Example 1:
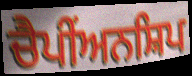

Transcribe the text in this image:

ਚੈਪੀਂਅਨਸ਼ਿਪ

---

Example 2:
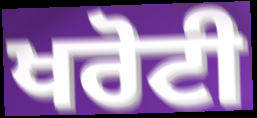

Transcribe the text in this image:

ਖਰੋਟੀ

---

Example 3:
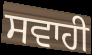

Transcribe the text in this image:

ਸਵਾਹੀ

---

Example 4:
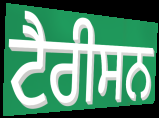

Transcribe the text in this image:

ਟੈਰੀਸਨ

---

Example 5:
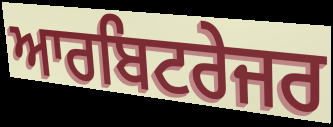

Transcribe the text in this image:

ਆਰਬਿਟਰੇਜਰ